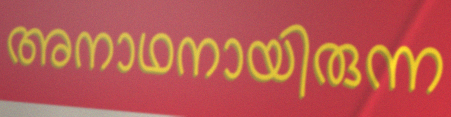
അനാഥനായിരുന്ന